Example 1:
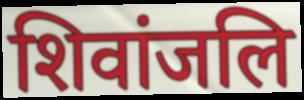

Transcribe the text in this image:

शिवांजलि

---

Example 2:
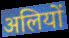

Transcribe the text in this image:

अलियों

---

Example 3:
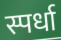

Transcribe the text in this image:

स्पर्धा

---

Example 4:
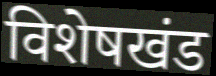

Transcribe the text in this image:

विशेषखंड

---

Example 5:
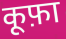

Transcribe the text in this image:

कूफ़ा